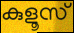
കുളൂസ്